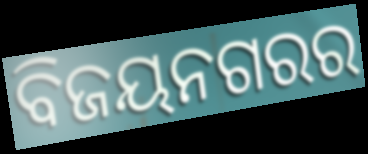
ବିଜୟନଗରର